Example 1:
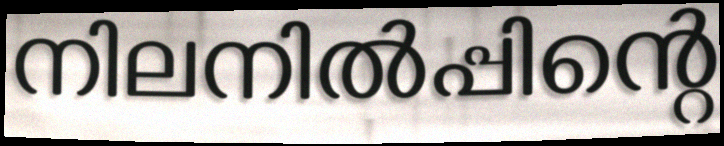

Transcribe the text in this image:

നിലനിൽപ്പിന്റെ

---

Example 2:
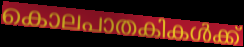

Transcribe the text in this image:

കൊലപാതകികൾക്ക്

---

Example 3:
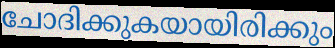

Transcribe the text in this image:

ചോദിക്കുകയായിരിക്കും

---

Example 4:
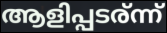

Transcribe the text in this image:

ആളിപ്പടര്ന്ന്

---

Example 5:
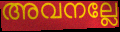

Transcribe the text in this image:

അവനല്ലേ